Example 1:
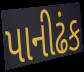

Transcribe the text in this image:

પાનીઢંક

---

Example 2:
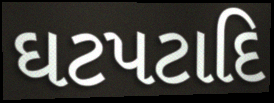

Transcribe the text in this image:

ઘટપટાદિ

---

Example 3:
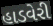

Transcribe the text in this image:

હાડવેરી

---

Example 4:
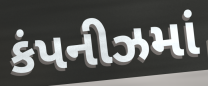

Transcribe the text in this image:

કંપનીઝમાં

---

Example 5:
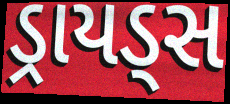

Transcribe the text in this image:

ડ્રાયડ્સ